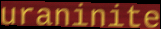
uraninite